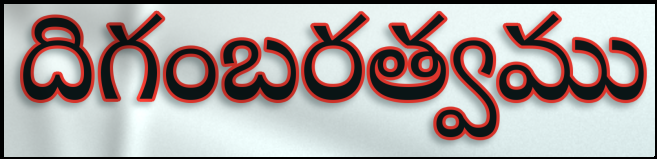
దిగంబరత్వము